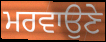
ਮਰਵਾਉਣੇ